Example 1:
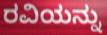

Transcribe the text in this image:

ರವಿಯನ್ನು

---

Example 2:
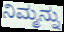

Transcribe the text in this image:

ನಿಮ್ಮನ್ನು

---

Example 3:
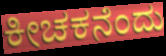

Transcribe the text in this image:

ಕೀಚಕನೆಂದು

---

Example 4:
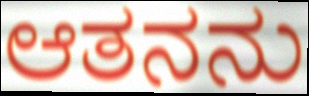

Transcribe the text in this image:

ಆತನನು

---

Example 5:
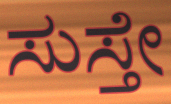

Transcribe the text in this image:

ಸುಸ್ತೇ